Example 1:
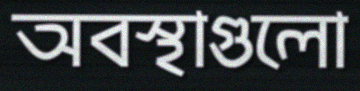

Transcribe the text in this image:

অবস্থাগুলো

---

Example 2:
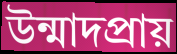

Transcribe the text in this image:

উন্মাদপ্রায়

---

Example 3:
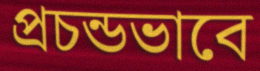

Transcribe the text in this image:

প্রচন্ডভাবে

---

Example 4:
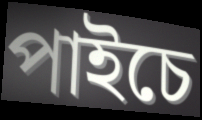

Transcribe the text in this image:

পাইচে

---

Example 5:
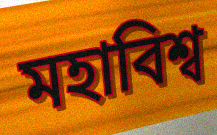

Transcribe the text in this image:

মহাবিশ্ব